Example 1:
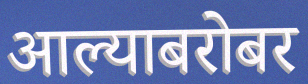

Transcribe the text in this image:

आल्याबरोबर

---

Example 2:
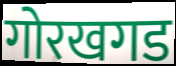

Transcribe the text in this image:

गोरखगड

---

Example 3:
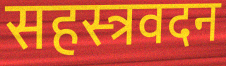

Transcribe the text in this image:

सहस्त्रवदन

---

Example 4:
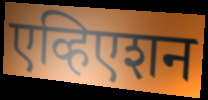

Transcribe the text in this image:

एव्हिएशन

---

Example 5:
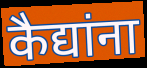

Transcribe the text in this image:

कैद्यांना